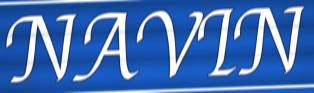
NAVIN